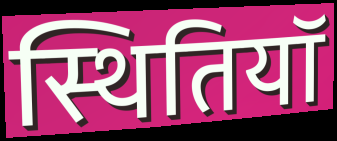
स्थितियॉ